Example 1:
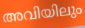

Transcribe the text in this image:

അവിയിലും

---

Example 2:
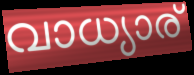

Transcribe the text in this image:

വാധ്യാര്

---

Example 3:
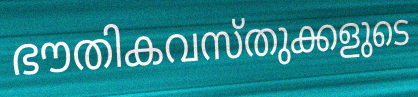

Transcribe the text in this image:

ഭൗതികവസ്തുക്കളുടെ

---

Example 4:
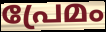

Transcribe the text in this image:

പ്രേമം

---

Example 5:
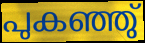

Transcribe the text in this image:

പുകഞ്ഞു്